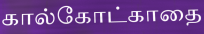
கால்கோட்காதை